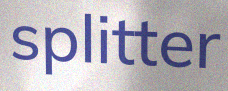
splitter